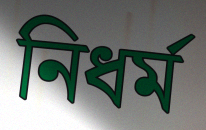
নিধর্ম